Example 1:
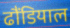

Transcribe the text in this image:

ढौंडियाल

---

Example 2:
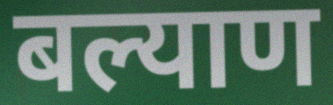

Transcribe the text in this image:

बल्याण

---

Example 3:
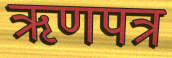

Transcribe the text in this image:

ऋणपत्र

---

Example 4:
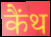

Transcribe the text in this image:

कैंथ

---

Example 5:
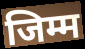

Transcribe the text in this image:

जिम्म